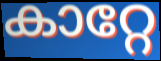
കാറ്റേ